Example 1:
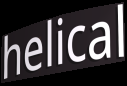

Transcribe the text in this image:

helical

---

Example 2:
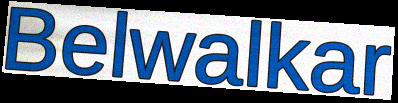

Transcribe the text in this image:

Belwalkar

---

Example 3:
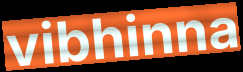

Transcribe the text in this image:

vibhinna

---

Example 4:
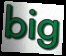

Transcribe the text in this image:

big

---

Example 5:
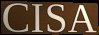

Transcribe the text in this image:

CISA